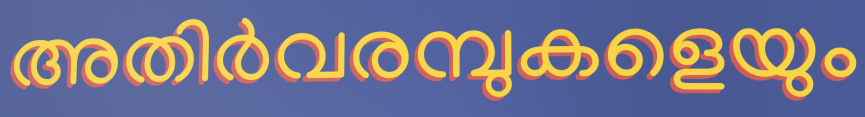
അതിർവരമ്പുകളെയും